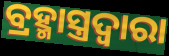
ବ୍ରହ୍ମାସ୍ତ୍ରଦ୍ୱାରା